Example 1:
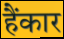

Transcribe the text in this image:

हैंकार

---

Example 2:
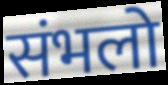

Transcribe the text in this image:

संभलो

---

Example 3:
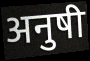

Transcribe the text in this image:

अनुषी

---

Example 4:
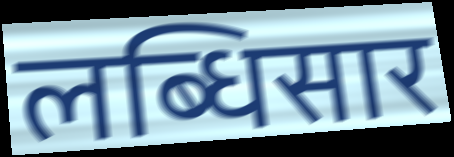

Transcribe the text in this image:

लब्धिसार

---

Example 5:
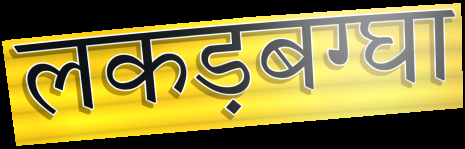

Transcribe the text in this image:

लकड़बग्घा